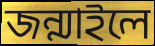
জন্মাইলে